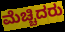
ಮೆಚ್ಚಿದರು